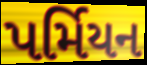
પર્મિયન